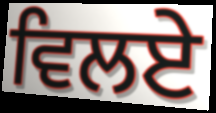
ਵਿਲਏ